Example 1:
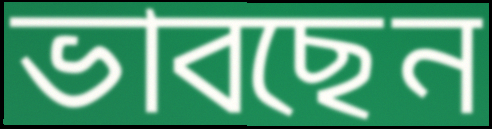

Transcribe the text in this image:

ভাবছেন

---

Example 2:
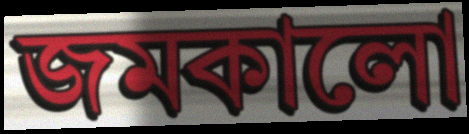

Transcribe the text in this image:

জমকালো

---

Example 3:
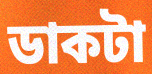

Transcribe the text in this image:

ডাকটা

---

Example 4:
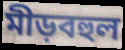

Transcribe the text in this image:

মীড়বহুল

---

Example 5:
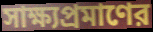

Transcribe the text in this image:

সাক্ষ্যপ্রমাণের